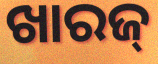
ଖାରଜ୍